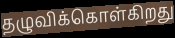
தழுவிக்கொள்கிறது